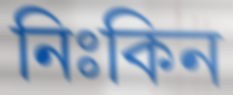
নিঃকিন